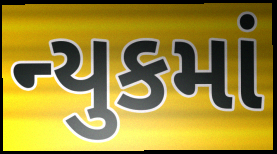
ન્યુકમાં